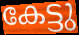
കേട്ടു